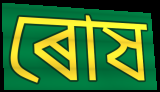
ৰোষ